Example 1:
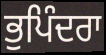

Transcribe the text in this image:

ਭੁਪਿੰਦਰਾ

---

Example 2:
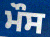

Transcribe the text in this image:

ਮੌਸ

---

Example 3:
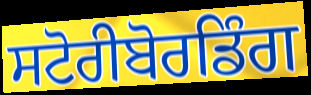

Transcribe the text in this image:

ਸਟੋਰੀਬੋਰਡਿੰਗ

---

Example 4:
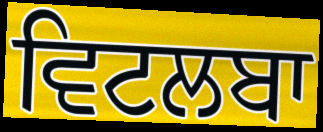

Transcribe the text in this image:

ਵਿਟਲਬਾ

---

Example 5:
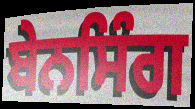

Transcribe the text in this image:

ਬੇਨਸਿੰਗ